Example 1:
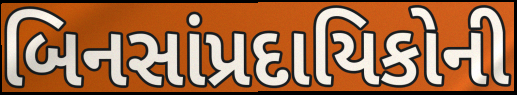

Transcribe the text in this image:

બિનસાંપ્રદાયિકોની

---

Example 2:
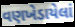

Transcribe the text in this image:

વણખેડાયેલાં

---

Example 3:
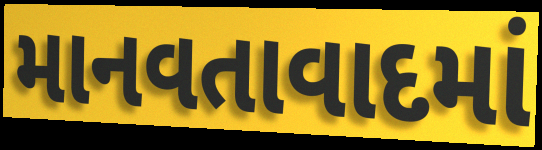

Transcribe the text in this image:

માનવતાવાદમાં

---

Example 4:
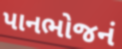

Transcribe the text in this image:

પાનભોજનં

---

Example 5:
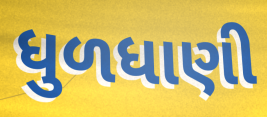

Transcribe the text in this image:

ધુળધાણી